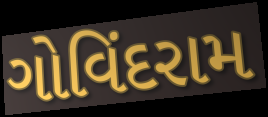
ગોવિંદરામ